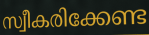
സ്വീകരിക്കേണ്ട